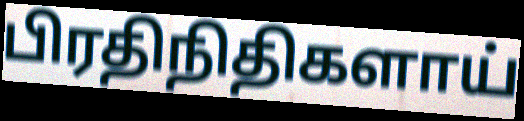
பிரதிநிதிகளாய்